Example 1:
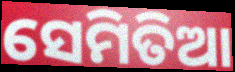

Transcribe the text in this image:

ସେମିତିଆ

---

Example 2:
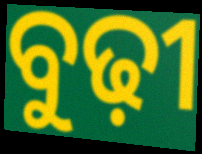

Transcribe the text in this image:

ବୁଢ଼ୀ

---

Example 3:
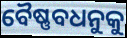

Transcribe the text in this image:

ବୈଷ୍ଣବଧନୁକୁ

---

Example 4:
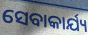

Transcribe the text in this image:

ସେବାକାର୍ଯ୍ୟ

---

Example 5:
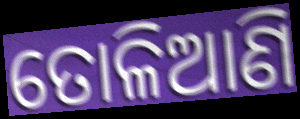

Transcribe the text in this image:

ତୋଳିଆଣି